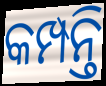
କମ୍ପନ୍ତି